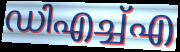
ഡിഎച്ച്എ